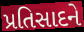
પ્રતિસાદને